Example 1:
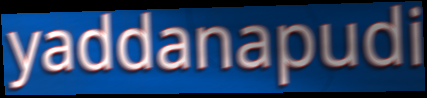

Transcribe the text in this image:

yaddanapudi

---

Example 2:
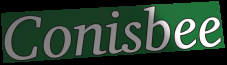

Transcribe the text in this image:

Conisbee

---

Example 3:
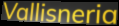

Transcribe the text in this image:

Vallisneria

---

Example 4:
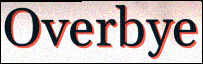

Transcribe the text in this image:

Overbye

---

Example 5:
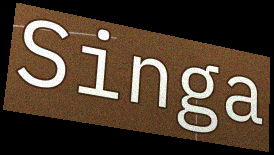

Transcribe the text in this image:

Singa